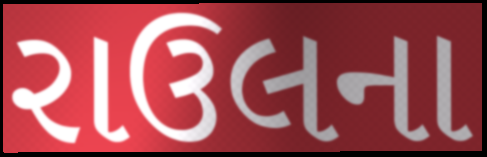
રાઉલના